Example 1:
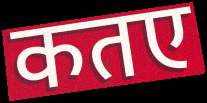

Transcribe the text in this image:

कतए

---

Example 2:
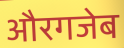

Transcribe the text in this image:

औरगजेब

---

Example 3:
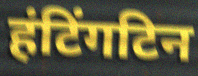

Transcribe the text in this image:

हंटिंगटिन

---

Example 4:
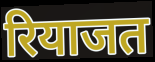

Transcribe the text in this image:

रियाजत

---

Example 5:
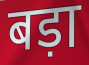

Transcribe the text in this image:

बड़ा